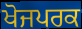
ਖੋਜਪਰਕ